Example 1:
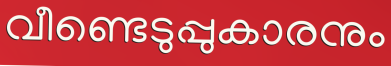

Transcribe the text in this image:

വീണ്ടെടുപ്പുകാരനും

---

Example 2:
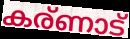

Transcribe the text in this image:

കര്ണാട്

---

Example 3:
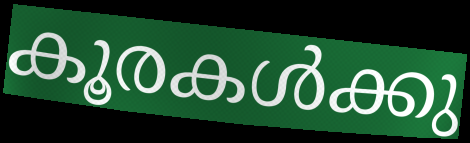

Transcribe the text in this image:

കൂരകൾക്കു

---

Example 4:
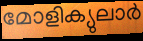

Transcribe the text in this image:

മോളിക്യുലാർ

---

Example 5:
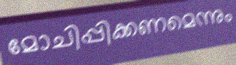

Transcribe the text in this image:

മോചിപ്പിക്കണമെന്നും